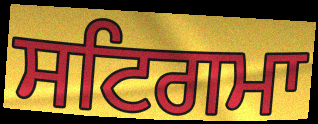
ਸਟਿਗਮਾ